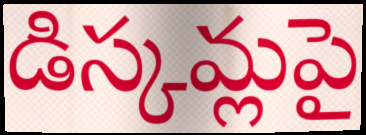
డిస్కమ్లపై